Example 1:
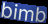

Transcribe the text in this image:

bimb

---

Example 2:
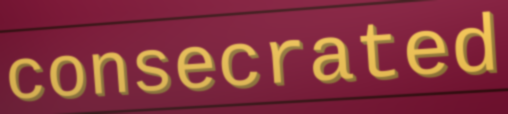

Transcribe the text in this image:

consecrated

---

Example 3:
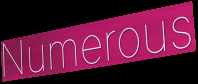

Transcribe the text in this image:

Numerous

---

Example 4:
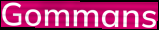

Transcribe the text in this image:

Gommans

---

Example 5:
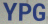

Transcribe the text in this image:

YPG